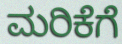
ಮರಿಕೆಗೆ